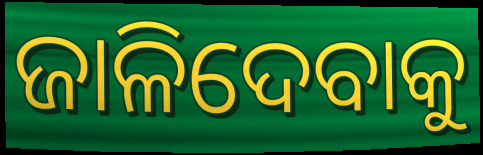
ଜାଳିଦେବାକୁ